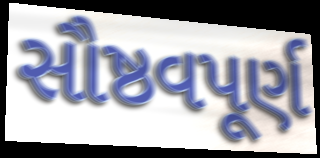
સૌષ્ઠવપૂર્ણ